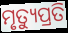
ମୃତ୍ୟୁପ୍ରତି